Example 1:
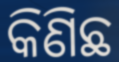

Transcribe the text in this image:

କିଣିଛ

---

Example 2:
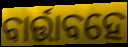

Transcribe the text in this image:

ବାର୍ତ୍ତାବହେ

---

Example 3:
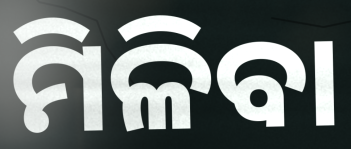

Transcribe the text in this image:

ମିଳିବା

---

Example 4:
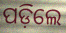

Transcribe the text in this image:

ପଡ଼ିଲେ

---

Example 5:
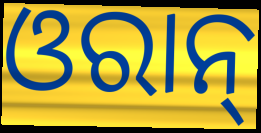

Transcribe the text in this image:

ଓରାନ୍